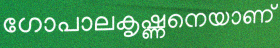
ഗോപാലകൃഷ്ണനെയാണ്